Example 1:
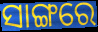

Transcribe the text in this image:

ସାଙ୍ଗରେ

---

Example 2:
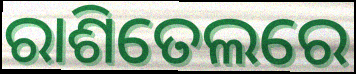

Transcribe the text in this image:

ରାଶିତେଲରେ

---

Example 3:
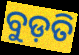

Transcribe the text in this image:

ବୁଡ଼ତି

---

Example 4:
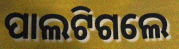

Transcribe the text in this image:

ପାଲଟିଗଲେ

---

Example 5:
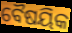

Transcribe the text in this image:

ବୈଷୟିକ